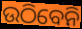
ଉଠିବେନି